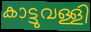
കാട്ടുവള്ളി